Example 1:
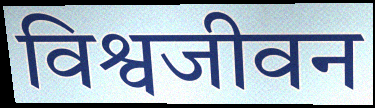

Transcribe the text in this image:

विश्वजीवन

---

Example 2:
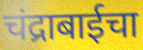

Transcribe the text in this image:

चंद्राबाईचा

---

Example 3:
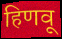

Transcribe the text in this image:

हिणवू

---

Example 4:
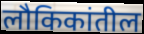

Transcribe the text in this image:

लौकिकांतील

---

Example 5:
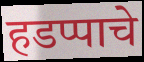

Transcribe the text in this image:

हडप्पाचे